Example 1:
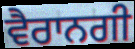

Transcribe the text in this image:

ਵੈਰਾਨਗੀ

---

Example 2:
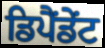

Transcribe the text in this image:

ਡਿਪੈਂਡੇਂਟ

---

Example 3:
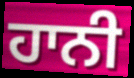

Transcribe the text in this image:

ਹਾਨੀ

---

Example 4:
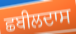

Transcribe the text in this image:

ਛਬੀਲਦਾਸ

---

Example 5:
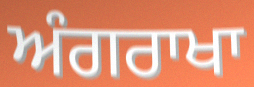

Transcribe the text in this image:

ਅੰਗਰਾਖਾ